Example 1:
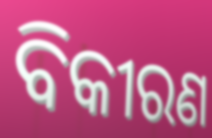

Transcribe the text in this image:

ବିକୀରଣ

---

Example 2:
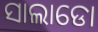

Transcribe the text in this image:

ସାଲାଡୋ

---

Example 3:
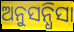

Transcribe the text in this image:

ଅନୁସନ୍ଧିସା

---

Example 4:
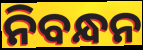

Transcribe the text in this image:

ନିବନ୍ଧନ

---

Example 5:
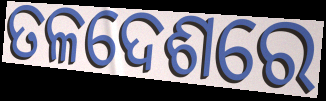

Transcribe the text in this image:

ତଳଦେଶରେ